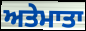
ਅਤੇਮਾਤਾ